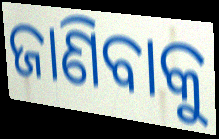
ଜାଣିବାକୁ